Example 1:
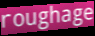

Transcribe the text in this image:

roughage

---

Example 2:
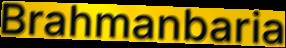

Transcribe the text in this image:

Brahmanbaria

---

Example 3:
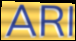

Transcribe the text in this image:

ARI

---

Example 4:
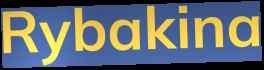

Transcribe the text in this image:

Rybakina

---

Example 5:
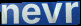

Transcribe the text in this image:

nevr